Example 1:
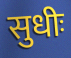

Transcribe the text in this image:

सुधीः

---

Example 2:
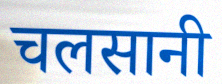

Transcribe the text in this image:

चलसानी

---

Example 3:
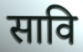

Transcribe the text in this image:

सावि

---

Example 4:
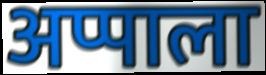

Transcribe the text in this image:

अप्पाला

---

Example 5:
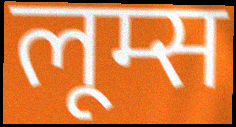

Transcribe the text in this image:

लूम्स